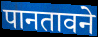
पानतावने